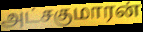
அட்சகுமாரன்